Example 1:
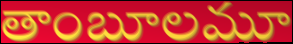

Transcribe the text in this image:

తాంబూలమూ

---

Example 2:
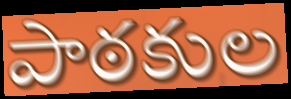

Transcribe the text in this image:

పాఠకుల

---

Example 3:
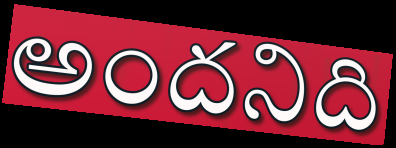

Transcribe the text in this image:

అందనిది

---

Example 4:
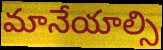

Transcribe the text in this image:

మానేయాల్సి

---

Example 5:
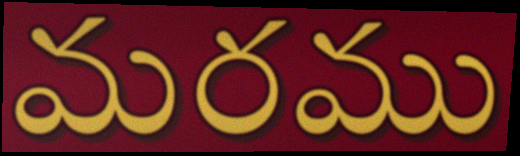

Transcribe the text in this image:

మరము